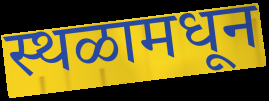
स्थळामधून